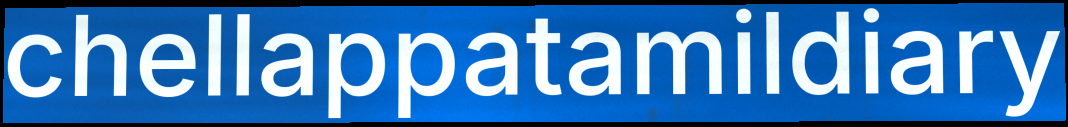
chellappatamildiary